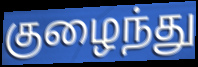
குழைந்து